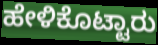
ಹೇಳಿಕೊಟ್ಟಾರು